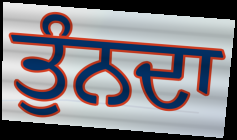
ਤੁੰਨਦਾ